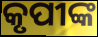
କୃପୀଙ୍କ